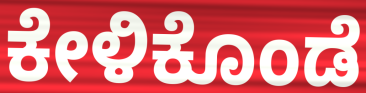
ಕೇಳಿಕೊಂಡೆ